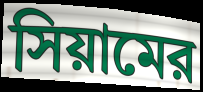
সিয়ামের